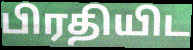
பிரதியிட